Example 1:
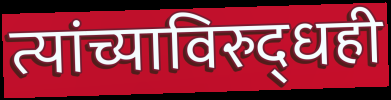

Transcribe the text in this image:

त्यांच्याविरुद्धही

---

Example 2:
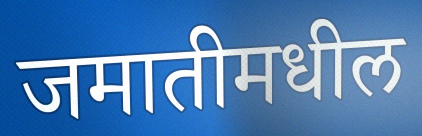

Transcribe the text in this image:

जमातीमधील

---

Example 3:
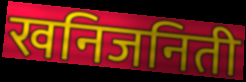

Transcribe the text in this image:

खनिजनिती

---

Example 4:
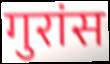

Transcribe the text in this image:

गुरांस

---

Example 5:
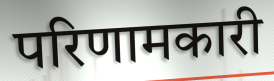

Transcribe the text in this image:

परिणामकारी